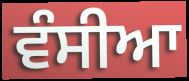
ਵੰਸੀਆ